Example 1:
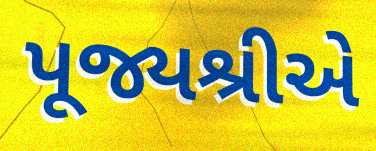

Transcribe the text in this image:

પૂજ્યશ્રીએ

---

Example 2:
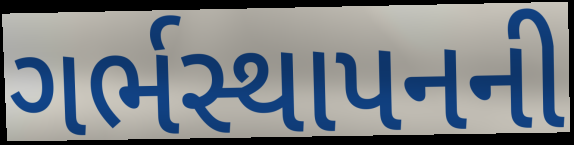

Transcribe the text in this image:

ગર્ભસ્થાપનની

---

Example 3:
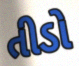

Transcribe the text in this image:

તીડો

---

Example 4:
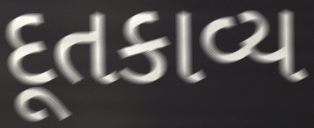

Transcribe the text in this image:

દૂતકાવ્ય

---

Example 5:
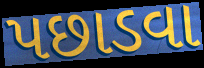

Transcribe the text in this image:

પછાડવા